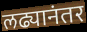
लढ्यानंतर